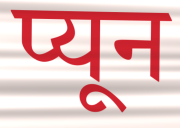
प्यून